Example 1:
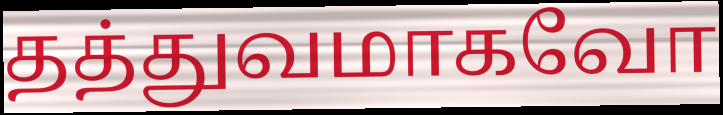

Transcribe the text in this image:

தத்துவமாகவோ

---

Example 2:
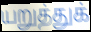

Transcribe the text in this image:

யறுத்துக்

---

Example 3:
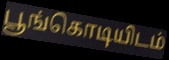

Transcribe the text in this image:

பூங்கொடியிடம்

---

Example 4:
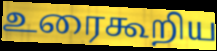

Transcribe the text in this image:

உரைகூறிய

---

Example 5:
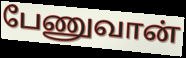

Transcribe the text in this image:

பேணுவான்